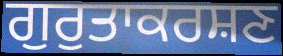
ਗੁਰੁਤਾਕਰਸ਼ਣ